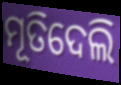
ମୂତିଦେଲି